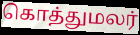
கொத்துமலர்